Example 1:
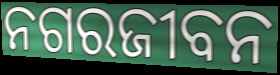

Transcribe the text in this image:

ନଗରଜୀବନ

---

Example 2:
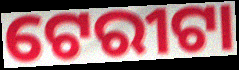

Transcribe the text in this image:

ଟେରୀଟା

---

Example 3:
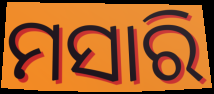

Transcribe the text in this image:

ମସାରି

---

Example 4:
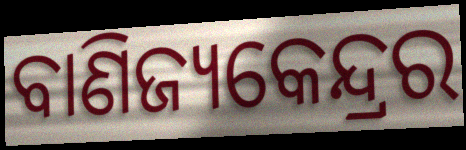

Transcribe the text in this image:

ବାଣିଜ୍ୟକେନ୍ଦ୍ରର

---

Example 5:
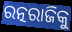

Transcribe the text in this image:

ରତ୍ନରାଜିକୁ